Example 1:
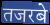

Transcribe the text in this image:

तजरबे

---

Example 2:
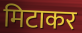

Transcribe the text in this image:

मिटाकर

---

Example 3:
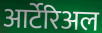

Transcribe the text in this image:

आर्टेरिअल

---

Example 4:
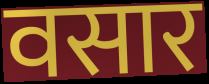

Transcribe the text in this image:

वसार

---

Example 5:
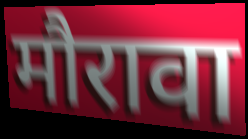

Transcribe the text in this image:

मौरावा